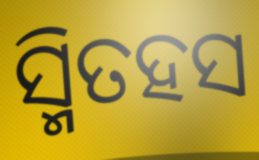
ସ୍ମିତହସ